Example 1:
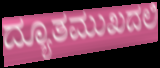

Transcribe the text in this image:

ದ್ಯೂತಮುಖದಲಿ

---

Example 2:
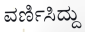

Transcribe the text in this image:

ವರ್ಣಿಸಿದ್ದು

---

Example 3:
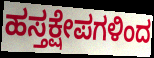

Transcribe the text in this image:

ಹಸ್ತಕ್ಷೇಪಗಳಿಂದ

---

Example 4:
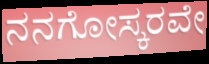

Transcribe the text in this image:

ನನಗೋಸ್ಕರವೇ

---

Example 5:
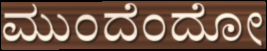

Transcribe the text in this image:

ಮುಂದೆಂದೋ